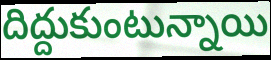
దిద్దుకుంటున్నాయి